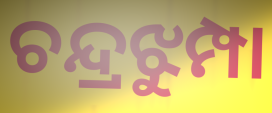
ଚନ୍ଦ୍ରଝୁମ୍ପା